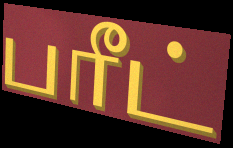
பரீட்